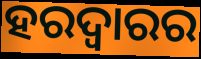
ହରଦ୍ୱାରର